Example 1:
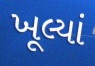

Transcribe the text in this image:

ખૂલ્યાં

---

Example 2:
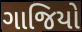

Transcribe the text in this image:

ગાજિયો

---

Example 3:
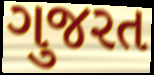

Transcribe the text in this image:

ગુજરત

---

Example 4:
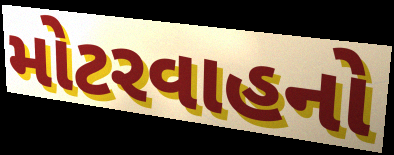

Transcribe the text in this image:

મોટરવાહનો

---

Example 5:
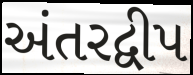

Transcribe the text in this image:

અંતરદ્વીપ